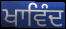
ਖਾਵਿੰਦ